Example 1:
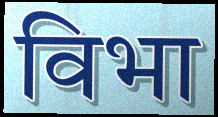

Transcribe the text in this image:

विभा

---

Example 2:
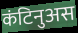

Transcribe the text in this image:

कंटिनुअस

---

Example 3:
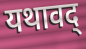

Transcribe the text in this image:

यथावद्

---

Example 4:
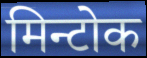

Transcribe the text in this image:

मिन्टोक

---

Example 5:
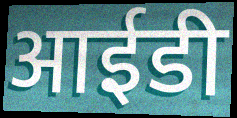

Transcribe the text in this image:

आईडी